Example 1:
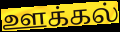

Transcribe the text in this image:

ஊக்கல்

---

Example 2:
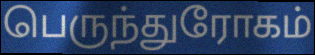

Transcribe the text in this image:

பெருந்துரோகம்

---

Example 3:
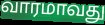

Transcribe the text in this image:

வாரமாவது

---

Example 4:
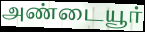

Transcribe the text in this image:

அண்டையூர்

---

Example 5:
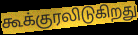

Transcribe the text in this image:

கூக்குரலிடுகிறது